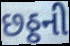
છઠ્ઠની